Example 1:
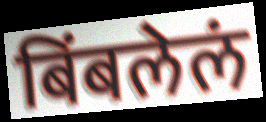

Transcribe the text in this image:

बिंबलेलं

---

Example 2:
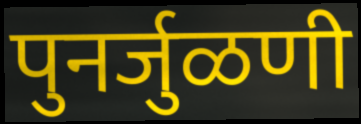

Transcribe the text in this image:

पुनर्जुळणी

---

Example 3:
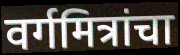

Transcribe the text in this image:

वर्गमित्रांचा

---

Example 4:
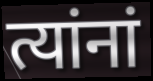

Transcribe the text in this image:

त्यांनां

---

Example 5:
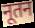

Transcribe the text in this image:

नूतन